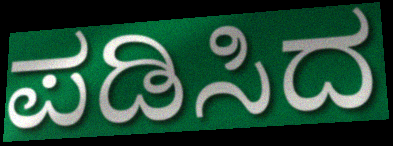
ಪಡಿಸಿದ